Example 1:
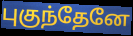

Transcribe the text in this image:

புகுந்தேனே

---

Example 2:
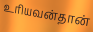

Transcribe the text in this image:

உரியவன்தான்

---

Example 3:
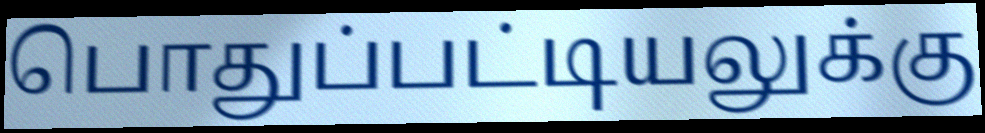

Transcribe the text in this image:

பொதுப்பட்டியலுக்கு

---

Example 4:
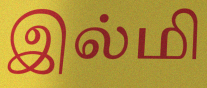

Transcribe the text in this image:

இல்மி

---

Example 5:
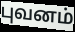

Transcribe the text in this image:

புவனம்